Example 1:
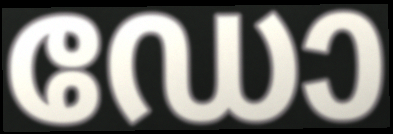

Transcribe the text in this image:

ഡോ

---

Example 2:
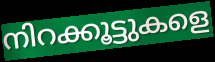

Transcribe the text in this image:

നിറക്കൂട്ടുകളെ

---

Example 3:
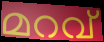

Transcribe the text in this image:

മറവ്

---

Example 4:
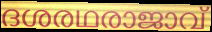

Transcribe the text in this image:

ദശരഥരാജാവ്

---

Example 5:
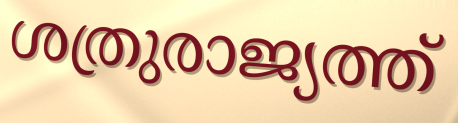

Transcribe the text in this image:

ശത്രുരാജ്യത്ത്